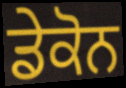
ਡੇਕੋਨ